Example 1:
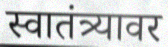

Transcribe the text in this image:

स्वातंत्र्यावर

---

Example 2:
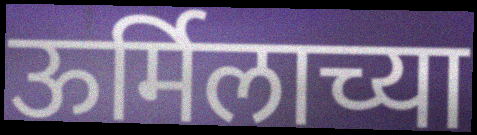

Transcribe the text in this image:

ऊर्मिलाच्या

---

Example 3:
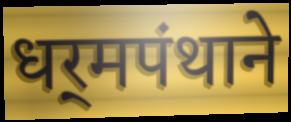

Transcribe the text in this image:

धर्मपंथाने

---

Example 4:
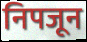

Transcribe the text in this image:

निपजून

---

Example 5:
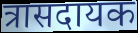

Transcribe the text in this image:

त्रासदायक